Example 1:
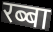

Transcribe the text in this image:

रब्बा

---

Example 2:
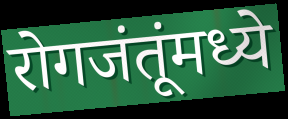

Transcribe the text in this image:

रोगजंतूंमध्ये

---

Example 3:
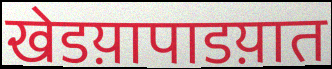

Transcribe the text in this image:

खेडय़ापाडय़ात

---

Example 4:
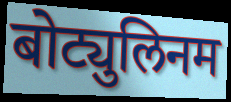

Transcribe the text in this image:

बोट्युलिनम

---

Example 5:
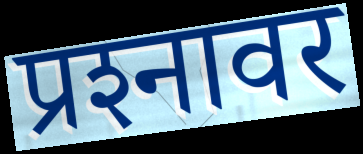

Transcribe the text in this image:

प्रश्‍नावर